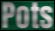
Pots